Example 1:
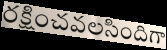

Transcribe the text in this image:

రక్షించవలసిందిగా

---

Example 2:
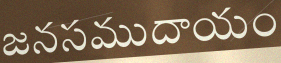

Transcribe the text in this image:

జనసముదాయం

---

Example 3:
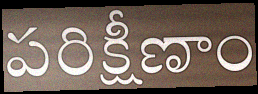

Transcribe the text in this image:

పరిక్షీణాం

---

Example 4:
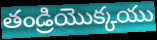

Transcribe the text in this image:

తండ్రియొక్కయు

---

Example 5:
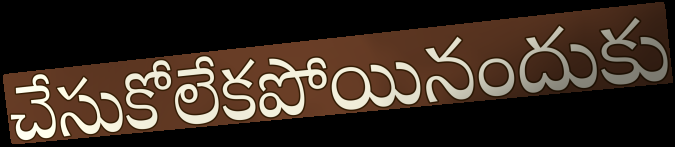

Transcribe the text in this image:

చేసుకోలేకపోయినందుకు